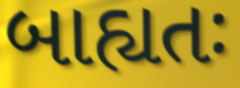
બાહ્યતઃ